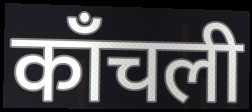
काँचली